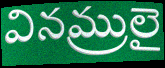
వినమ్రులై